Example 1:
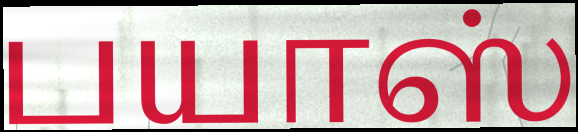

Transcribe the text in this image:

பயாஸ்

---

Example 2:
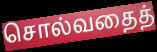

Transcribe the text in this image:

சொல்வதைத்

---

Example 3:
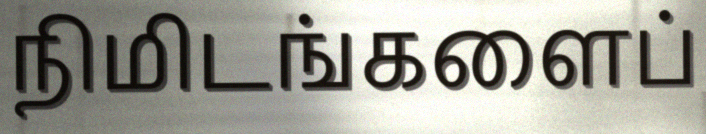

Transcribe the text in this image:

நிமிடங்களைப்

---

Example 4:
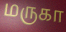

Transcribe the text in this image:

மருகா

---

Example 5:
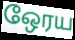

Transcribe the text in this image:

ஒேரய